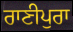
ਰਾਣੀਪੁਰਾ